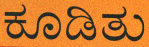
ಕೂಡಿತು